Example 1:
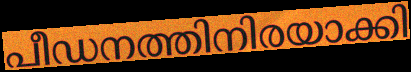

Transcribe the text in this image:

പീഡനത്തിനിരയാക്കി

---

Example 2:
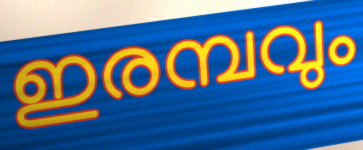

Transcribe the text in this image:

ഇരമ്പവും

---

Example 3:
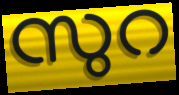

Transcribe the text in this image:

സുറ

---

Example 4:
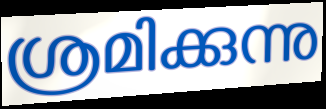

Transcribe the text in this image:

ശ്രമിക്കുന്നു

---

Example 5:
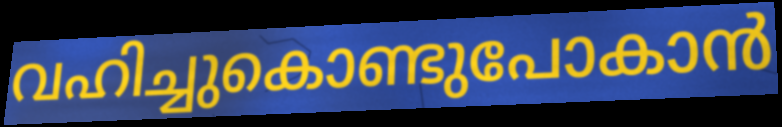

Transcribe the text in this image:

വഹിച്ചുകൊണ്ടുപോകാൻ